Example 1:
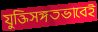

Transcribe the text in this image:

যুক্তিসঙ্গতভাবেই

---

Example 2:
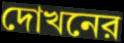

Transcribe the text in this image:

দোখনের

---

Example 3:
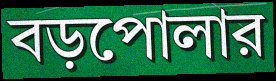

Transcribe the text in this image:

বড়পোলার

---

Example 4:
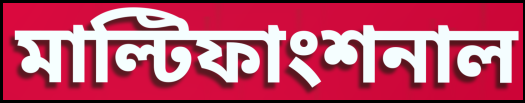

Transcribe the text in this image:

মাল্টিফাংশনাল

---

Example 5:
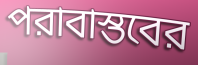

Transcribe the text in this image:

পরাবাস্তবের